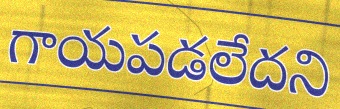
గాయపడలేదని